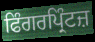
ਫਿੰਗਰਪ੍ਰਿੰਟਜ਼